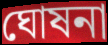
ঘোষনা